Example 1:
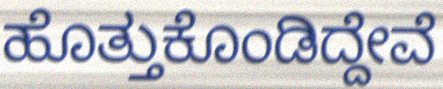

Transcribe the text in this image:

ಹೊತ್ತುಕೊಂಡಿದ್ದೇವೆ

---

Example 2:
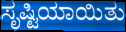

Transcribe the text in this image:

ಸೃಷ್ಟಿಯಾಯಿತು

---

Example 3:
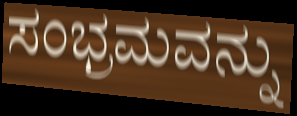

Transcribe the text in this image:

ಸಂಭ್ರಮವನ್ನು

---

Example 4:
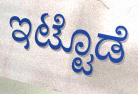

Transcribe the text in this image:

ಇಟ್ಟೊಡೆ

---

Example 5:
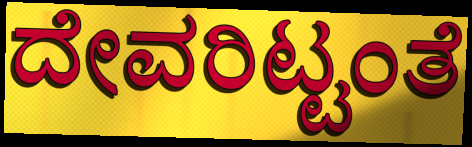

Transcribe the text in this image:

ದೇವರಿಟ್ಟಂತೆ